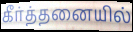
கீர்த்தனையில்